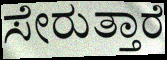
ಸೇರುತ್ತಾರೆ